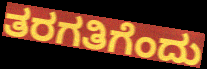
ತರಗತಿಗೆಂದು